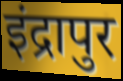
इंद्रापुर